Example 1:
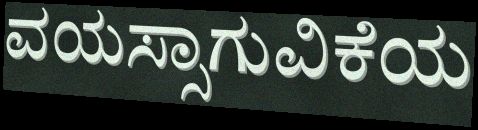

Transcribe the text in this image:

ವಯಸ್ಸಾಗುವಿಕೆಯ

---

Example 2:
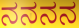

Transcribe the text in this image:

ನನನನ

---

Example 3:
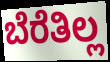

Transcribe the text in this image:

ಬೆರೆತಿಲ್ಲ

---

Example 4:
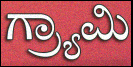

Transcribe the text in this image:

ಗ್ರ್ಯಾಮಿ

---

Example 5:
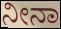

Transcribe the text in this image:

ನೀನಾ